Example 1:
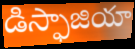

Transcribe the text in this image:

డిస్ఫాజియా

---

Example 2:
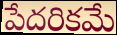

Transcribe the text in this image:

పేదరికమే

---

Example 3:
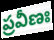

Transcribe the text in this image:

ప్రవీణః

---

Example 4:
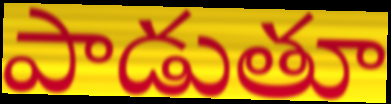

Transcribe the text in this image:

పాడుతూ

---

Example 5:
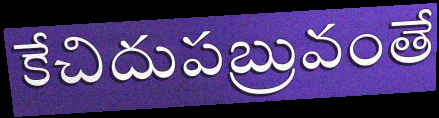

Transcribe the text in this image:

కేచిదుపబ్రువంతే